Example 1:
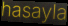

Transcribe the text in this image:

hasayla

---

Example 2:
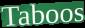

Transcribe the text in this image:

Taboos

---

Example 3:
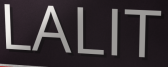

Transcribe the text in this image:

LALIT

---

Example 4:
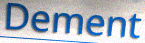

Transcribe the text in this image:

Dement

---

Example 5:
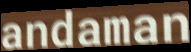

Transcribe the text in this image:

andaman